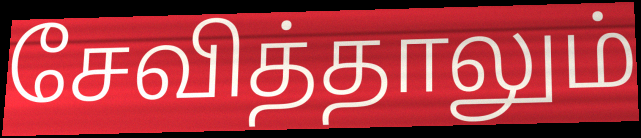
சேவித்தாலும்